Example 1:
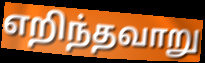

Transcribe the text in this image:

எறிந்தவாறு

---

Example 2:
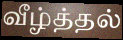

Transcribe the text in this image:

வீழ்த்தல்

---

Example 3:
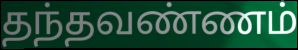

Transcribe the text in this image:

தந்தவண்ணம்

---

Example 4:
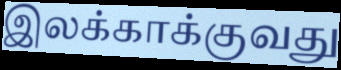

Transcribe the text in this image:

இலக்காக்குவது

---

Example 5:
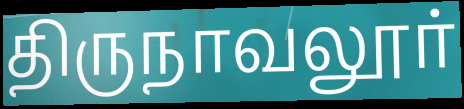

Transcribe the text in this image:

திருநாவலூர்